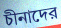
চীনাদের